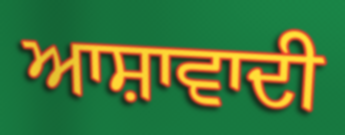
ਆਸ਼ਾਵਾਦੀ